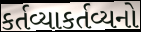
કર્તવ્યાકર્તવ્યનો